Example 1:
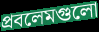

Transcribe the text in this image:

প্রবলেমগুলো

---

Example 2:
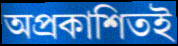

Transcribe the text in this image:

অপ্রকাশিতই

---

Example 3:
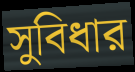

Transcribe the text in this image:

সুবিধার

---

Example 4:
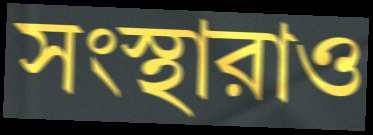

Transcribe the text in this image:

সংস্থারাও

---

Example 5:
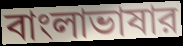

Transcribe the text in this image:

বাংলাভাষার